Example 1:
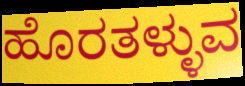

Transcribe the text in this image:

ಹೊರತಳ್ಳುವ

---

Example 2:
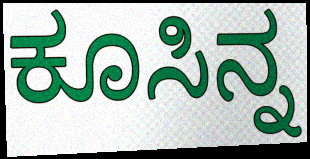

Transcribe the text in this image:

ಕೂಸಿನ್ನ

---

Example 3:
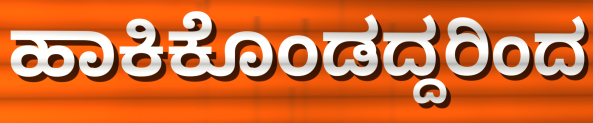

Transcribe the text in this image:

ಹಾಕಿಕೊಂಡದ್ದರಿಂದ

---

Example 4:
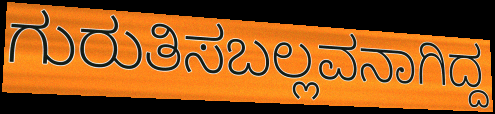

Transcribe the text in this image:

ಗುರುತಿಸಬಲ್ಲವನಾಗಿದ್ದ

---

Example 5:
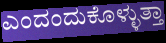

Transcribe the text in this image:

ಎಂದಂದುಕೊಳ್ಳುತ್ತಾ